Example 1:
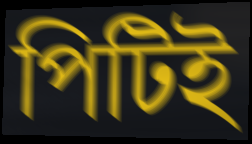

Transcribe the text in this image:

পিটিই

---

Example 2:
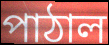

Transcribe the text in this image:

পাঠাল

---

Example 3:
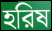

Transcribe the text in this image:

হরিষ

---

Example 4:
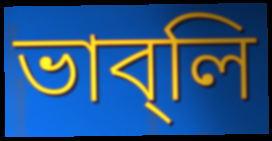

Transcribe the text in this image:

ভাব্‌লি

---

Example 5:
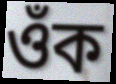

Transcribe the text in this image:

ওঁক